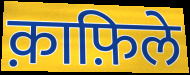
क़ाफ़िले